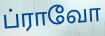
ப்ராவோ